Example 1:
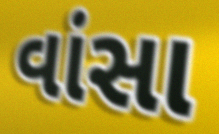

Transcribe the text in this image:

વાંસા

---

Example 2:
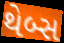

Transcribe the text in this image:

થેબ્સ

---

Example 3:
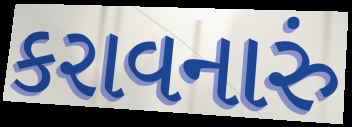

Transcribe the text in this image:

કરાવનારું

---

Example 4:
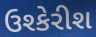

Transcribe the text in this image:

ઉશ્કેરીશ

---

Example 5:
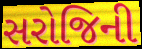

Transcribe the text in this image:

સરોજિની